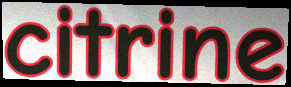
citrine